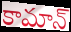
కామాన్